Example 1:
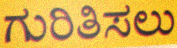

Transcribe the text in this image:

ಗುರಿತಿಸಲು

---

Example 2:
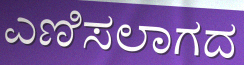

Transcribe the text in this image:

ಎಣಿಸಲಾಗದ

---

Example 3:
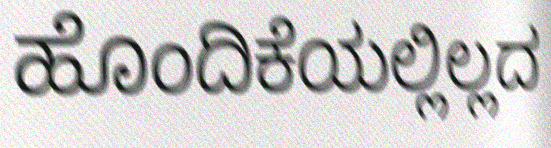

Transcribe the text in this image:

ಹೊಂದಿಕೆಯಲ್ಲಿಲ್ಲದ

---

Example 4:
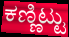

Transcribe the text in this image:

ಕಣ್ಣಿಟ್ಟು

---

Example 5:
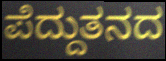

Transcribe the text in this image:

ಪೆದ್ದುತನದ